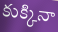
కుక్కినా